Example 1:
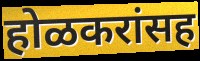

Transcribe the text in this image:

होळकरांसह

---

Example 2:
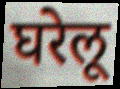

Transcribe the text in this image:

घरेलू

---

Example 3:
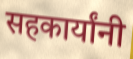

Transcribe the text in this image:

सहकार्यांनी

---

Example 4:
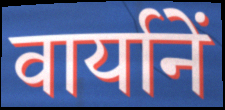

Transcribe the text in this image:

वार्यानें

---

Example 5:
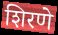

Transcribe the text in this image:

शिरणे